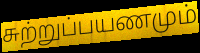
சுற்றுப்பயணமும்